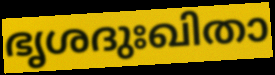
ഭൃശദുഃഖിതാ